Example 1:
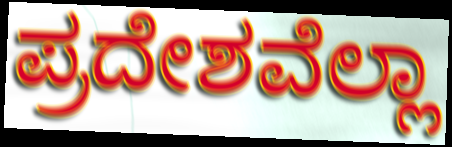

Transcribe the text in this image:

ಪ್ರದೇಶವೆಲ್ಲಾ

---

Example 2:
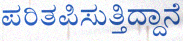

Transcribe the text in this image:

ಪರಿತಪಿಸುತ್ತಿದ್ದಾನೆ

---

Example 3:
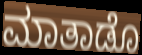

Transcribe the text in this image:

ಮಾತಾಡೊ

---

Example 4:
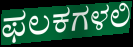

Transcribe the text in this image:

ಫಲಕಗಳಲಿ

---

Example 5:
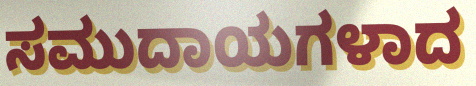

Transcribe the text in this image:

ಸಮುದಾಯಗಳಾದ